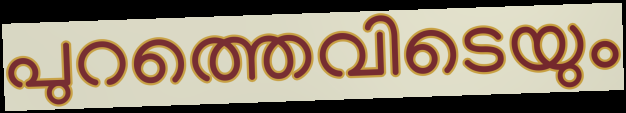
പുറത്തെവിടെയും